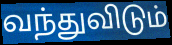
வந்துவிடும்